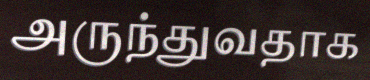
அருந்துவதாக